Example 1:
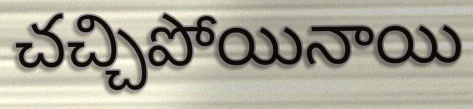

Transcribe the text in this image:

చచ్చిపోయినాయి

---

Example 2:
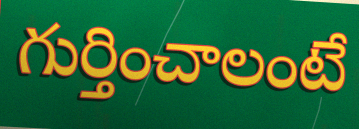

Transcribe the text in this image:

గుర్తించాలంటే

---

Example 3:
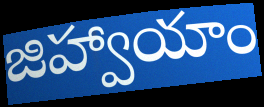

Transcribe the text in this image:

జిహ్వాయాం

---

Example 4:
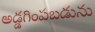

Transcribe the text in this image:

అడ్డగింపబడును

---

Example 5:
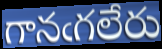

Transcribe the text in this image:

గానఁగలేరు